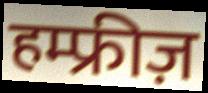
हम्फ्रीज़